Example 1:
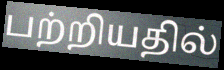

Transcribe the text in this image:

பற்றியதில்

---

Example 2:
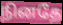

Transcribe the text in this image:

நினதே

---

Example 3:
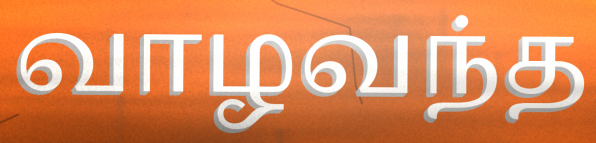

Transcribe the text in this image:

வாழவந்த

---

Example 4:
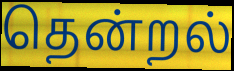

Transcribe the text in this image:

தென்றல்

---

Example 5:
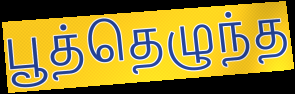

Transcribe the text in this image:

பூத்தெழுந்த